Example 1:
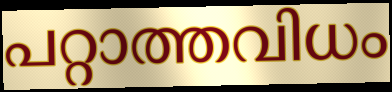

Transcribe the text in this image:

പറ്റാത്തവിധം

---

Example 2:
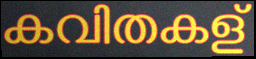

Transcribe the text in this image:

കവിതകള്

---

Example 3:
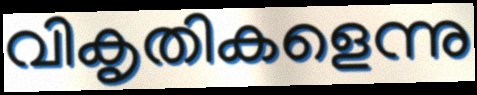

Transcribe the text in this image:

വികൃതികളെന്നു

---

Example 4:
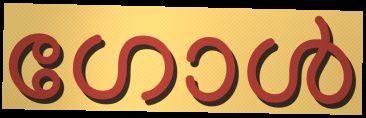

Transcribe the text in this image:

ഗോൾ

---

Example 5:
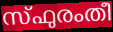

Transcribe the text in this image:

സ്ഫുരംതീ